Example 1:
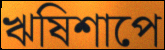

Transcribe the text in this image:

ঋষিশাপে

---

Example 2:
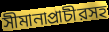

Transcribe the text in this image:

সীমানাপ্রাচীরসহ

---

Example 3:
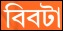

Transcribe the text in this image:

বিবটা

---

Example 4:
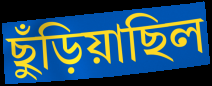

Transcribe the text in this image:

ছুঁড়িয়াছিল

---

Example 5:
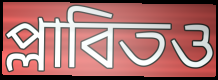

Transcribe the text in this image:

প্লাবিতও